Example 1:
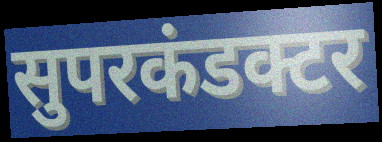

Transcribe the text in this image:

सुपरकंडक्टर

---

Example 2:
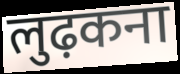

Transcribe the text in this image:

लुढ़कना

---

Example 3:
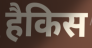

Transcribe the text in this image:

हैकिस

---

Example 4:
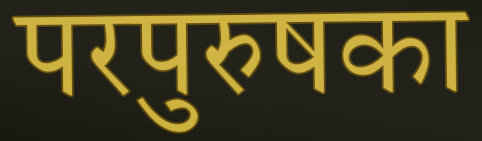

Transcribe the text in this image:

परपुरुषका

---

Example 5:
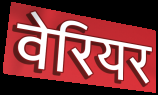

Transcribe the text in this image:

वेरियर